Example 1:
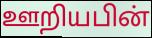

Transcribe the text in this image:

ஊறியபின்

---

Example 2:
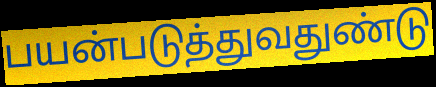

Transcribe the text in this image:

பயன்படுத்துவதுண்டு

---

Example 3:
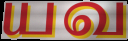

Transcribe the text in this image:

யவ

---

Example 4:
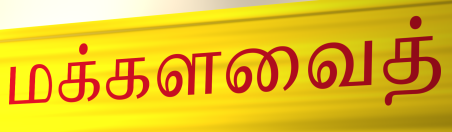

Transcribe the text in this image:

மக்களவைத்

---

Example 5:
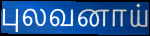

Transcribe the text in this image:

புலவனாய்